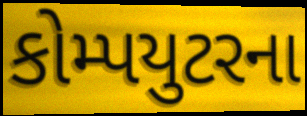
કોમ્પયુટરના